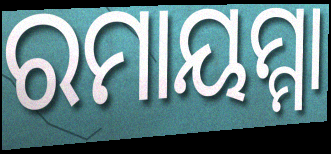
ରମାୟମ୍ମା